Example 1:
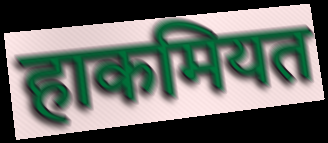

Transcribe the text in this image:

हाकमियत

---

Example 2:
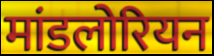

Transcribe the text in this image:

मांडलोरियन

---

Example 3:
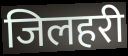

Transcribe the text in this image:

जिलहरी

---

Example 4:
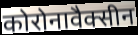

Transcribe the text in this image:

कोरोनावैक्सीन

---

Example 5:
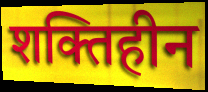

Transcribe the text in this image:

शक्तिहीन